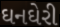
ઘનઘેરી